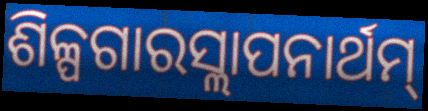
ଶିଳ୍ପଗାରସ୍ଲାପନାର୍ଥମ୍